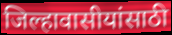
जिल्हावासीयांसाठी